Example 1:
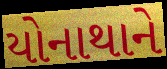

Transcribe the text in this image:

યોનાથાને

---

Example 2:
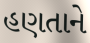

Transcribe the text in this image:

હણતાને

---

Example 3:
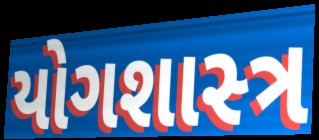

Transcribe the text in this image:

યોગશાસ્‍ત્ર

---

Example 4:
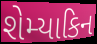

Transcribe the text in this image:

શેમ્યાકિન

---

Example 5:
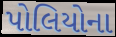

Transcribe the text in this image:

પોલિયોના